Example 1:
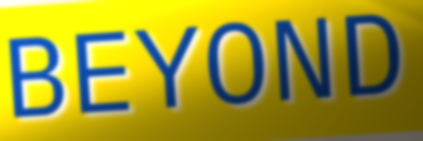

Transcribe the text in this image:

BEYOND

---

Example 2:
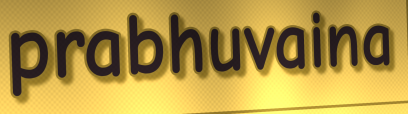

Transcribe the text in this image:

prabhuvaina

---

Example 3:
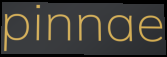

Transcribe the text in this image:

pinnae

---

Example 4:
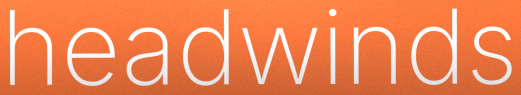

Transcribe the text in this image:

headwinds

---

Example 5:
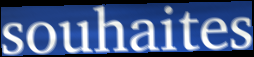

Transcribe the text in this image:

souhaites